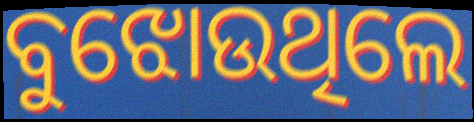
ବୁଝୋଉଥିଲେ